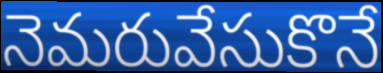
నెమరువేసుకొనే